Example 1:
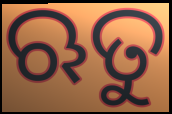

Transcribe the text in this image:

ଋତୁ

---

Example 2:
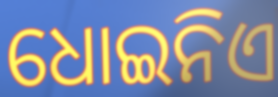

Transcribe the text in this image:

ଧୋଇନିଏ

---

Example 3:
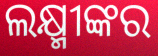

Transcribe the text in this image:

ଲକ୍ଷ୍ମୀଙ୍କର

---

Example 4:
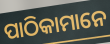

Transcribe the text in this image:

ପାଠିକାମାନେ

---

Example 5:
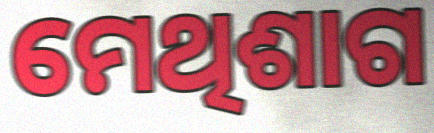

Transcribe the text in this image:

ମେଥିଶାଗ